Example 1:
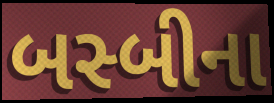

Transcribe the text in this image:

બસ્બીના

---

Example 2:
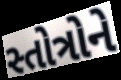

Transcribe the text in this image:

સ્તોત્રોને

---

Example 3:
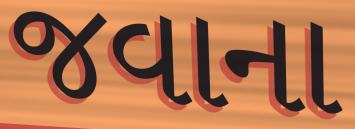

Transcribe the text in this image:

જવાના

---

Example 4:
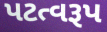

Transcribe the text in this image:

પટત્વરૂપ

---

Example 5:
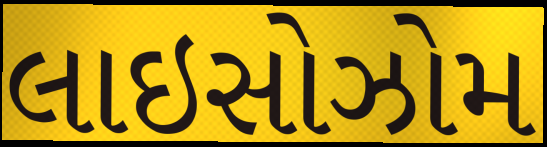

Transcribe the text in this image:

લાઇસોઝોમ